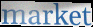
market